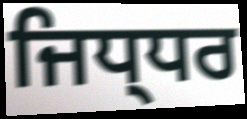
ਜਿਧ੍ਧਰ